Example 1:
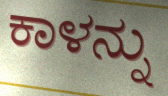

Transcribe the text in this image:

ಕಾಳನ್ನು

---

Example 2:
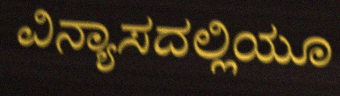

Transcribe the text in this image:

ವಿನ್ಯಾಸದಲ್ಲಿಯೂ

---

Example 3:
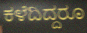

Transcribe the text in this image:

ಕಳೆದಿದ್ದರೂ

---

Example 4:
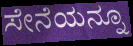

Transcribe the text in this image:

ಸೇನೆಯನ್ನೂ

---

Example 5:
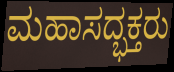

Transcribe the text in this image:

ಮಹಾಸದ್ಭಕ್ತರು